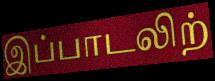
இப்பாடலிற்